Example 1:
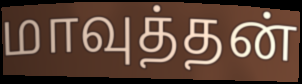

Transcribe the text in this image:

மாவுத்தன்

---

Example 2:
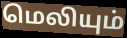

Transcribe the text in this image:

மெலியும்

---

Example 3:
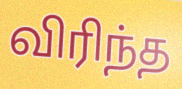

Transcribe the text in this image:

விரிந்த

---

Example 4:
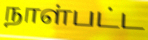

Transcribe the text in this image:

நாள்பட்ட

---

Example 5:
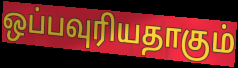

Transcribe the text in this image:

ஒப்பவுரியதாகும்